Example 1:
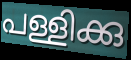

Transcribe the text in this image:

പള്ളിക്കു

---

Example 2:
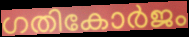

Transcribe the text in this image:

ഗതികോർജം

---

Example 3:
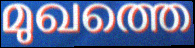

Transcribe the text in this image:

മുഖത്തെ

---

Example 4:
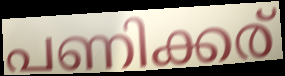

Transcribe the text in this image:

പണിക്കര്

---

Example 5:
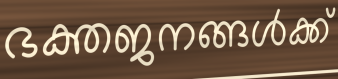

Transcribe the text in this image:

ഭക്തജനങ്ങൾക്ക്